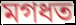
মগধত